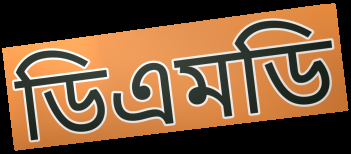
ডিএমডি